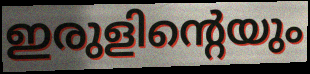
ഇരുളിന്റെയും